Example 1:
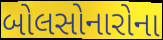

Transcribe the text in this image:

બોલસોનારોના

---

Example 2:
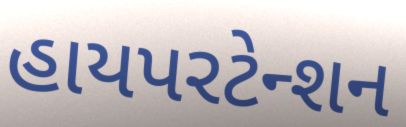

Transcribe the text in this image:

હાયપરટેન્શન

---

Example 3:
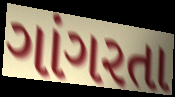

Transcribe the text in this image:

ગાંગરતા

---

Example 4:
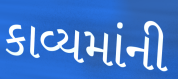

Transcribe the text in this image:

કાવ્યમાંની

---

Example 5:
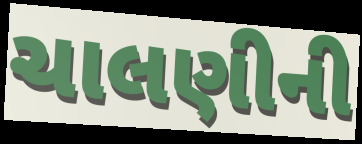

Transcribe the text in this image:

ચાલણીની